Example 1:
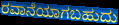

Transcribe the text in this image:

ರವಾನೆಯಾಗಬಹುದು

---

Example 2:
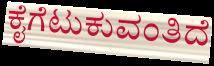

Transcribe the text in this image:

ಕೈಗೆಟುಕುವಂತಿದೆ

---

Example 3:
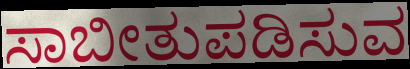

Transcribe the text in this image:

ಸಾಬೀತುಪಡಿಸುವ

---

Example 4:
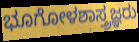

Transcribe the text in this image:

ಭೂಗೋಳಶಾಸ್ತ್ರಜ್ಞರು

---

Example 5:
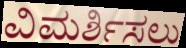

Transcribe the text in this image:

ವಿಮರ್ಶಿಸಲು